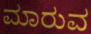
ಮಾರುವ